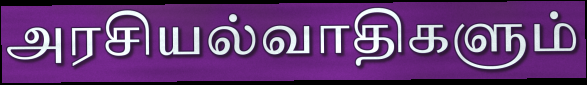
அரசியல்வாதிகளும்